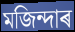
মজিন্দাৰ